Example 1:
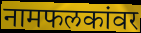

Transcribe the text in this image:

नामफलकांवर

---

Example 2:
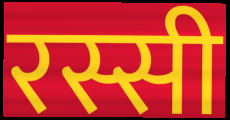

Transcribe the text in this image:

रस्सी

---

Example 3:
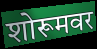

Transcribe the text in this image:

शोरूमवर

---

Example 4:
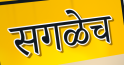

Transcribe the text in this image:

सगळेच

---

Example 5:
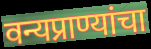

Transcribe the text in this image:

वन्यप्राण्यांचा